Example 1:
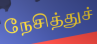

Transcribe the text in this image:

நேசித்துச்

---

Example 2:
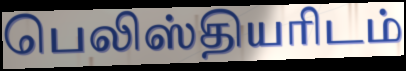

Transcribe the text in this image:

பெலிஸ்தியரிடம்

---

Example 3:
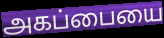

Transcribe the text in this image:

அகப்பையை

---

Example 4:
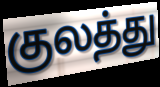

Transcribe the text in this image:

குலத்து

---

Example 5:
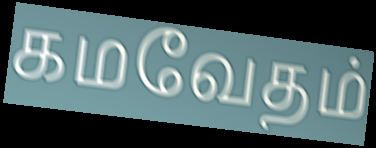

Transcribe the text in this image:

கமவேதம்